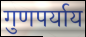
गुणपर्याय